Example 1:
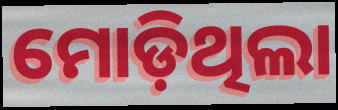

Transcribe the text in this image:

ମୋଡ଼ିଥିଲା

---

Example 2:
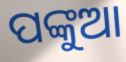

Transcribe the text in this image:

ପଙ୍କୁଆ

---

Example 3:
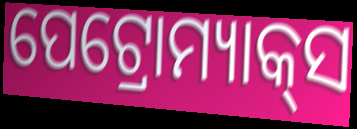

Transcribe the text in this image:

ପେଟ୍ରୋମ୍ୟାକ୍‌ସ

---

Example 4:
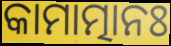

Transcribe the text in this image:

କାମାତ୍ମାନଃ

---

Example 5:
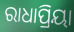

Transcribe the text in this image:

ରାଧାପ୍ରିୟା